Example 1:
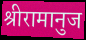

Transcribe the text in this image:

श्रीरामानुज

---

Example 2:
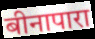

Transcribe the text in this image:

बीनापारा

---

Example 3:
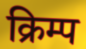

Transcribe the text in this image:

क्रिम्प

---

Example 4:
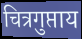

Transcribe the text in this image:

चित्रगुप्ताय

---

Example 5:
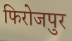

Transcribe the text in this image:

फिरोजपुर